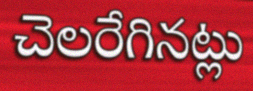
చెలరేగినట్లు